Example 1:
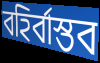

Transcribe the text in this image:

বহির্বাস্তব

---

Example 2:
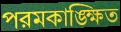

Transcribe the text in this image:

পরমকাঙ্ক্ষিত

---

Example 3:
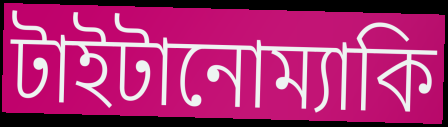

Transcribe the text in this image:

টাইটানোম্যাকি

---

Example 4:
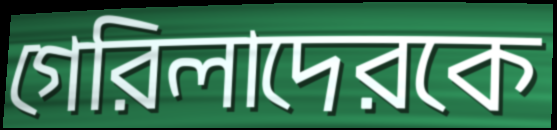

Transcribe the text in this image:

গেরিলাদেরকে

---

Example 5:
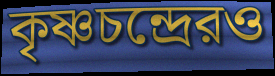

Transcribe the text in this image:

কৃষ্ণচন্দ্রেরও